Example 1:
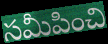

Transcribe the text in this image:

సమీపించి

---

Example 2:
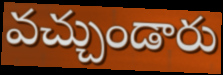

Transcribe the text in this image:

వచ్చుండారు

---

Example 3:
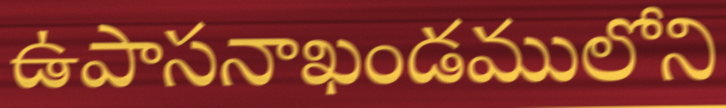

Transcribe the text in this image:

ఉపాసనాఖండములోని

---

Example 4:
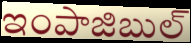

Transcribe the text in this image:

ఇంపాజిబుల్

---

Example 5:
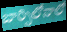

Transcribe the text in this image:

బార్సిలోనాలో